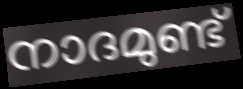
നാദമുണ്ട്